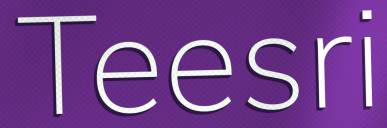
Teesri